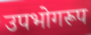
उपभोगरूप